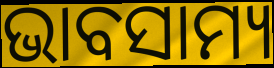
ଭାବସାମ୍ୟ